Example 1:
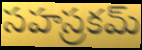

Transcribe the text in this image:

సహస్రకమ్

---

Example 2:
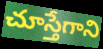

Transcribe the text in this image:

చూస్తేగాని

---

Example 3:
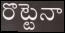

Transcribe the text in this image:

రొట్టెనా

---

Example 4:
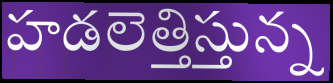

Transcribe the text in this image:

హడలెత్తిస్తున్న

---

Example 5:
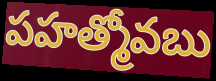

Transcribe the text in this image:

పహత్మోవబు